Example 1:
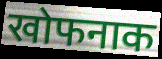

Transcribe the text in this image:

खोफनाक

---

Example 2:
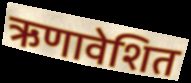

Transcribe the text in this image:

ऋणावेशित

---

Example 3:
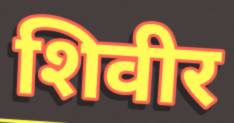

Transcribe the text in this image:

शिवीर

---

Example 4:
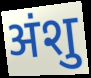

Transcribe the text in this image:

अंशु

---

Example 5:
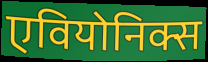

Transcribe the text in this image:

एवियोनिक्स